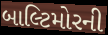
બાલ્ટિમોરની